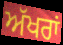
ਅੱਖਰਾਂ